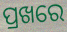
ପ୍ରଖରେ